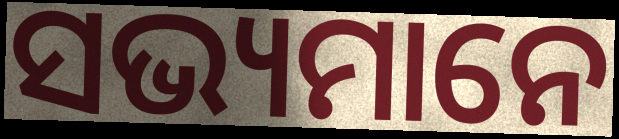
ସଭ୍ୟମାନେ